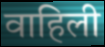
वाहिली